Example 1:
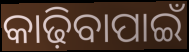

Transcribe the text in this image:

କାଢ଼ିବାପାଇଁ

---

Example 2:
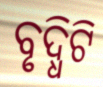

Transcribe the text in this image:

ବୃଦ୍ଧିଟି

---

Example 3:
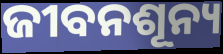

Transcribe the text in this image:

ଜୀବନଶୂନ୍ୟ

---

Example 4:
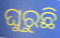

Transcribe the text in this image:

ଘୁରୁଛି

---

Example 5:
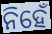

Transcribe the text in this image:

ନିହେଁ